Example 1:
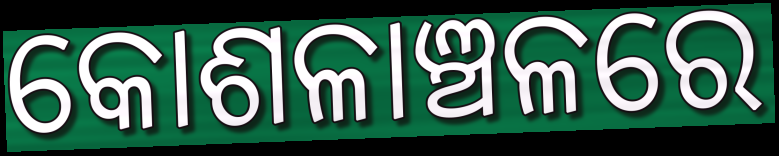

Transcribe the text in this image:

କୋଶଳାଞ୍ଚଳରେ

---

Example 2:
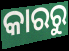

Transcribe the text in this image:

କାରରୁ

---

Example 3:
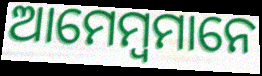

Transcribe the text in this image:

ଆମେମ୍ବମାନେ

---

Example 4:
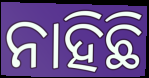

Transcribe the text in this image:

ନାହିଛି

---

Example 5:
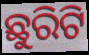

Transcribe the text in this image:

ଛୁରିଟି